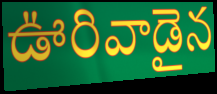
ఊరివాడైన